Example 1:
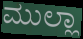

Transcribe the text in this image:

ಮುಲ್ಲಾ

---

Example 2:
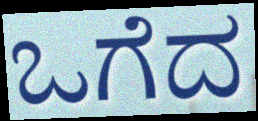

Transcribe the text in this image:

ಒಗೆದ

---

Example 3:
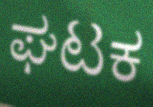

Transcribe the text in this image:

ಘಟಕ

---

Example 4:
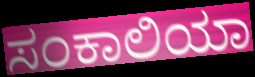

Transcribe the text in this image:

ಸಂಕಾಲಿಯಾ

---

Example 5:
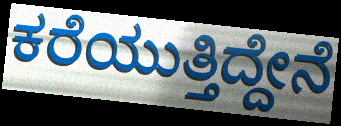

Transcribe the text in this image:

ಕರೆಯುತ್ತಿದ್ದೇನೆ